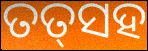
ତତ୍‌ସହ